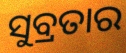
ସୁବ୍ରତାର